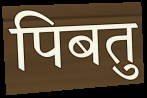
पिबतु